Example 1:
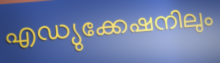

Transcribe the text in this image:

എഡ്യുക്കേഷനിലും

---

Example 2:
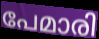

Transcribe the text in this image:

പേമാരി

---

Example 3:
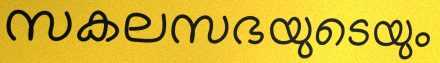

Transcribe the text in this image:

സകലസഭയുടെയും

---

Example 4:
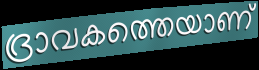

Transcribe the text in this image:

ദ്രാവകത്തെയാണ്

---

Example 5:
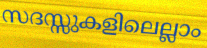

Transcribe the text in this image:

സദസ്സുകളിലെല്ലാം